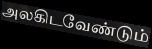
அலகிடவேண்டும்